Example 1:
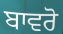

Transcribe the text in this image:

ਬਾਵਰੋ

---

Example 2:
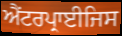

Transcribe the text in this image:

ਐਂਟਰਪ੍ਰਾਈਜਿਸ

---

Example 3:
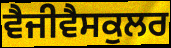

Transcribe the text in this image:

ਵੈਜੀਵੈਸਕੁਲਰ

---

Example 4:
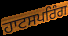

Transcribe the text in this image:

ਹਾਟਸਪਰਿੰਗ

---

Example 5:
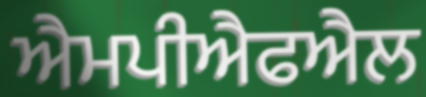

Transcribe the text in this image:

ਐਮਪੀਐਫਐਲ